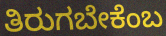
ತಿರುಗಬೇಕೆಂಬ